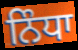
ਨਿੰਧਾ